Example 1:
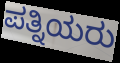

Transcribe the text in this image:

ಪತ್ನಿಯರು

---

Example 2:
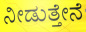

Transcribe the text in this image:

ನೀಡುತ್ತೇನೆ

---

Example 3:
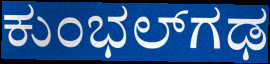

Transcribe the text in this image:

ಕುಂಭಲ್‌ಗಢ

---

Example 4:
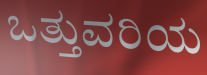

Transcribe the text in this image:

ಒತ್ತುವರಿಯ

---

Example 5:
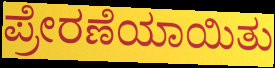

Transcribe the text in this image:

ಪ್ರೇರಣೆಯಾಯಿತು